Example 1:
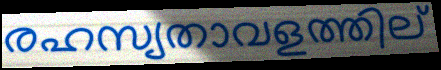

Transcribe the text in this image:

രഹസ്യതാവളത്തില്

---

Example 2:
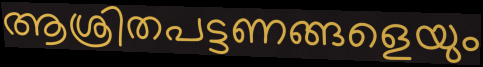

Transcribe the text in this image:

ആശ്രിതപട്ടണങ്ങളെയും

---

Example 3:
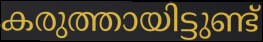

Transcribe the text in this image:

കരുത്തായിട്ടുണ്ട്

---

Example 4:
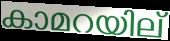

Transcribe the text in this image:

കാമറയില്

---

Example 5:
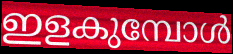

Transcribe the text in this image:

ഇളകുമ്പോൾ